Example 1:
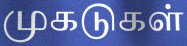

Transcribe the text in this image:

முகடுகள்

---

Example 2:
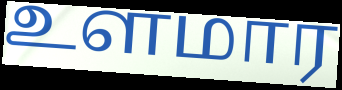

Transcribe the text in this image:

உளமார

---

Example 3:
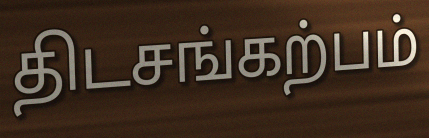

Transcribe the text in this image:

திடசங்கற்பம்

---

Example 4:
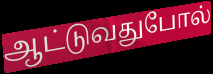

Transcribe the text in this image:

ஆட்டுவதுபோல்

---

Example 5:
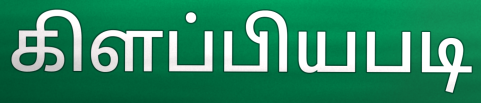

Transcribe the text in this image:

கிளப்பியபடி